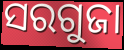
ସରଗୁଜା